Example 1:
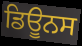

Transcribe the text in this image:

ਡਿਊਨਸ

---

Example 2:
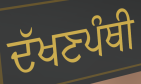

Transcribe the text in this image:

ਦੱਖਣਪੰਥੀ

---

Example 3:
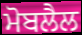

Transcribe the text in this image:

ਮੋਬਲੈਲ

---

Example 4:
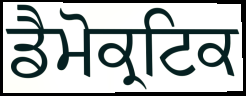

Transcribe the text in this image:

ਡੈਮੋਕ੍ਰਟਿਕ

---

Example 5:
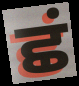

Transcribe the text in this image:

ਛਂ